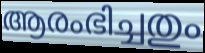
ആരംഭിച്ചതും